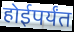
होईपर्यंत